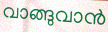
വാങ്ങുവാൻ